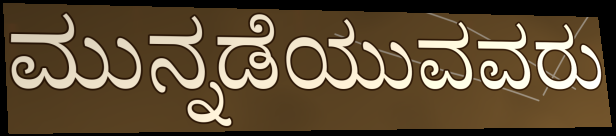
ಮುನ್ನಡೆಯುವವರು